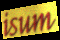
isum